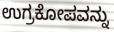
ಉಗ್ರಕೋಪವನ್ನು